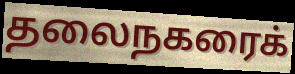
தலைநகரைக்